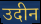
उदीन